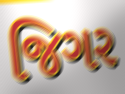
જિગર